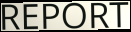
REPORT